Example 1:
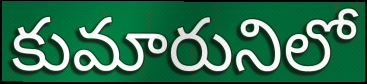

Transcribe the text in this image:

కుమారునిలో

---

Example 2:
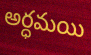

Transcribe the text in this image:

అర్ధమయి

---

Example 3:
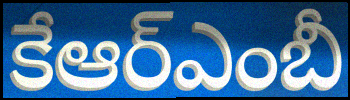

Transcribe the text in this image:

కేఆర్ఎంబీ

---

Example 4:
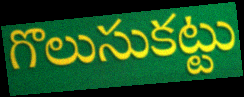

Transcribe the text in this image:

గొలుసుకట్టు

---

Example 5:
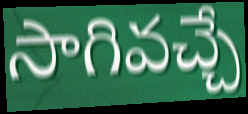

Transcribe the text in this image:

సాగివచ్చే